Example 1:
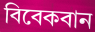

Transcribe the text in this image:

বিবেকবান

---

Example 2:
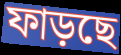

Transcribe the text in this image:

ফাড়ছে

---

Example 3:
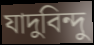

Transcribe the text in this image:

যাদুবিন্দু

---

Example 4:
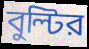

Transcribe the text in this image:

বুল্টির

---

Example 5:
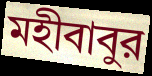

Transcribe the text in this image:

মহীবাবুর